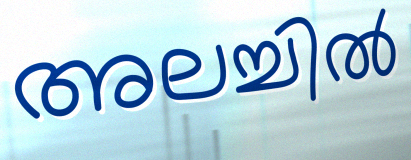
അലച്ചിൽ